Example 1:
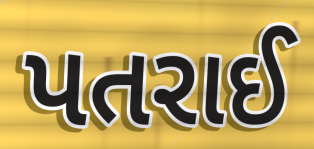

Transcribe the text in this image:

પતરાઈ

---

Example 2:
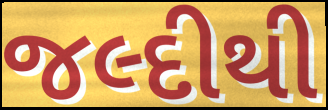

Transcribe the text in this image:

જલ્દીથી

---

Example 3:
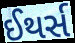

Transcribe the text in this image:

ઈથર્સ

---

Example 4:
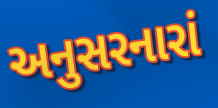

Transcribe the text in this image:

અનુસરનારાં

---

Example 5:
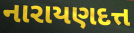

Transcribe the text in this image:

નારાયણદત્ત